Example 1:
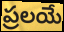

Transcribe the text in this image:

ప్రలయే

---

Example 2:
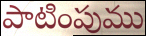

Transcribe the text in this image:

పాటింపుము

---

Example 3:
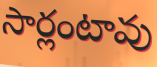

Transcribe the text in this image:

సార్లంటావు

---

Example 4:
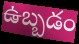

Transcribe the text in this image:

ఉబ్బడం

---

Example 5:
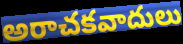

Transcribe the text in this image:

అరాచకవాదులు